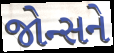
જોન્સને